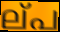
ല്‌പ